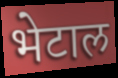
भेटाल